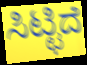
ಸಿಟ್ಟಿದೆ